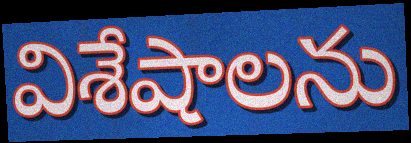
విశేషాలను